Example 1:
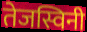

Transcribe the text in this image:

तेजस्विनी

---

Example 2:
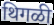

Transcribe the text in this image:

थिगळी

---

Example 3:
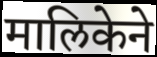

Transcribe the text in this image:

मालिकेने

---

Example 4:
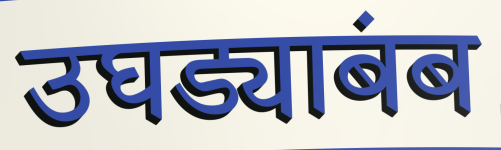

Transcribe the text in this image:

उघड्याबंब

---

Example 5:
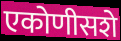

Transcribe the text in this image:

एकोणीसशे